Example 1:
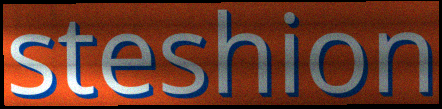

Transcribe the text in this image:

steshion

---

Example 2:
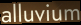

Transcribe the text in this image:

alluvium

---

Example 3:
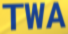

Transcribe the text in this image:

TWA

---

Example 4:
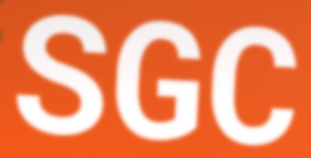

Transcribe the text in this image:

SGC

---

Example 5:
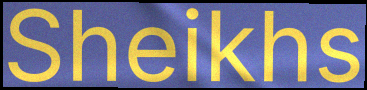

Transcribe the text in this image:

Sheikhs